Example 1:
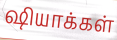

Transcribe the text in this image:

ஷியாக்கள்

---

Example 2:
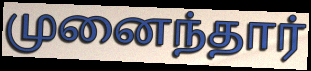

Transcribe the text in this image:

முனைந்தார்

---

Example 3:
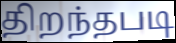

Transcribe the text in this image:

திறந்தபடி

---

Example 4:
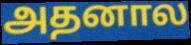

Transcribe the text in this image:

அதனால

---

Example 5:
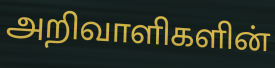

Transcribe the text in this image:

அறிவாளிகளின்